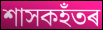
শাসকহঁতৰ